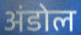
अंडोल